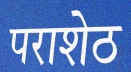
पराशेठ